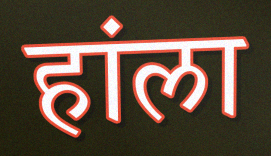
हांला